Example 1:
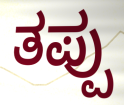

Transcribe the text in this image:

ತಪ್ಪು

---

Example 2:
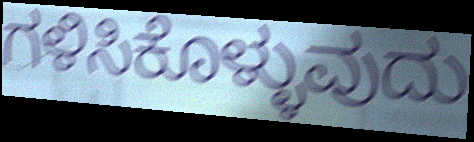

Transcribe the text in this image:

ಗಳಿಸಿಕೊಳ್ಳುವುದು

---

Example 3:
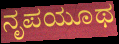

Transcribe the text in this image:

ನೃಪಯೂಥ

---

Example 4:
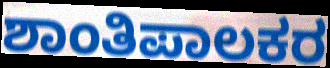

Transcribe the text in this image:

ಶಾಂತಿಪಾಲಕರ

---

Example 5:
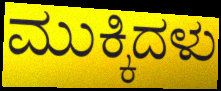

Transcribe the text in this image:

ಮುಕ್ಕಿದಳು